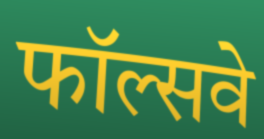
फॉल्सवे